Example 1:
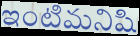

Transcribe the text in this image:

ఇంటిమనిషి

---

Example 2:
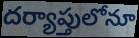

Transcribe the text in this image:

దర్యాప్తులోనూ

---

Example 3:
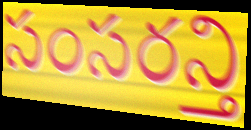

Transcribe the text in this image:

సంసరన్తి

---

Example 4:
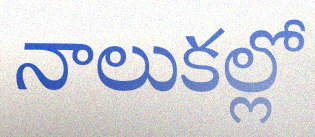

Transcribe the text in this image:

నాలుకల్లో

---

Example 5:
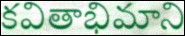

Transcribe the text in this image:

కవితాభిమాని